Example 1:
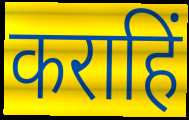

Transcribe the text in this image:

कराहिं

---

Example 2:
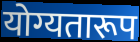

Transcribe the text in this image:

योग्यतारूप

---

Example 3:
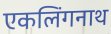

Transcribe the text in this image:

एकलिंगनाथ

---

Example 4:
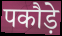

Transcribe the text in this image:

पकौड़े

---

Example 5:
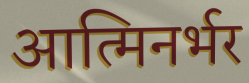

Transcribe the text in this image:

आत्मिनर्भर